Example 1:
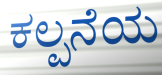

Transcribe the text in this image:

ಕಲ್ಪನೆಯ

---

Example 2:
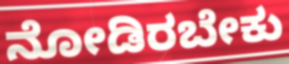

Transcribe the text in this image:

ನೋಡಿರಬೇಕು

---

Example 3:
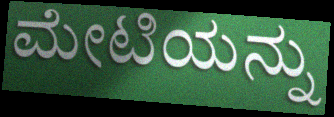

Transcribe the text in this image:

ಮೇಟಿಯನ್ನು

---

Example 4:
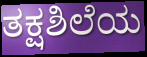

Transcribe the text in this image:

ತಕ್ಷಶಿಲೆಯ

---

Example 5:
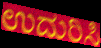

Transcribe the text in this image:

ಉದುರಿಸಿ